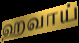
ஹவாய்